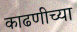
काढणीच्या